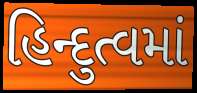
હિન્દુત્વમાં